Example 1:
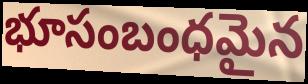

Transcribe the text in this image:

భూసంబంధమైన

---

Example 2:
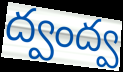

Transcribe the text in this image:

ద్వంద్వ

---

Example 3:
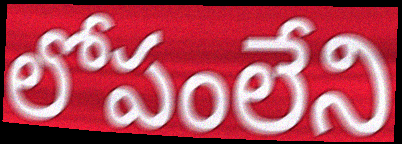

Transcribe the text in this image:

లోపంలేని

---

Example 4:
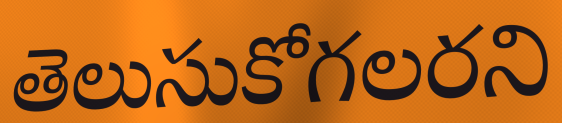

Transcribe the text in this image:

తెలుసుకోగలరని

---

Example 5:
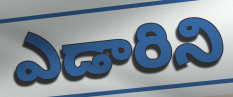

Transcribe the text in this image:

ఎడారిని